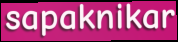
sapaknikar